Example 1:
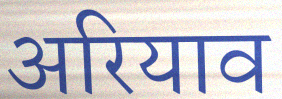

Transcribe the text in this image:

अरियाव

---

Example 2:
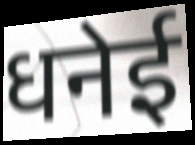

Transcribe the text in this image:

धनेई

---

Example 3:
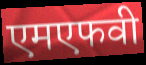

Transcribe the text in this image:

एमएफवी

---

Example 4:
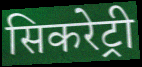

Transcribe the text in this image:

सिकरेट्री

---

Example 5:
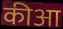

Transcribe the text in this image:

कीआ